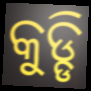
କୁଡ୍ଡି